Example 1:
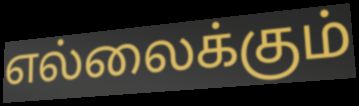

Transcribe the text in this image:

எல்லைக்கும்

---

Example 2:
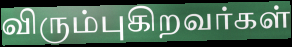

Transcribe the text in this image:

விரும்புகிறவர்கள்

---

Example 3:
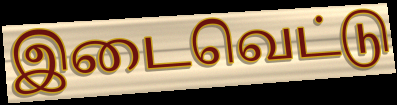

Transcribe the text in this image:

இடைவெட்டு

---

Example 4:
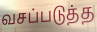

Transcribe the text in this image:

வசப்படுத்த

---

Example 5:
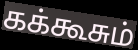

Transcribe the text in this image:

கக்கூசும்